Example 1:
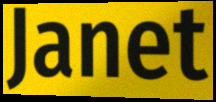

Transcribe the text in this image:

Janet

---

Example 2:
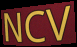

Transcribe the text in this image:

NCV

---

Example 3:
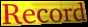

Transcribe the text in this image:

Record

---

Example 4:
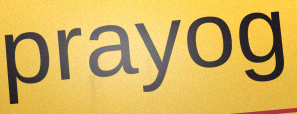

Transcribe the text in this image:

prayog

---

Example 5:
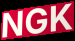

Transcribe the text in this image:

NGK